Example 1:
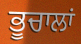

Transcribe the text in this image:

ਭੂਚਾਲਾਂ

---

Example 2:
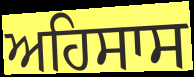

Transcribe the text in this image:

ਅਹਿਸਾਸ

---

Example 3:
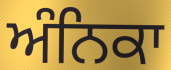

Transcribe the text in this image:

ਅੰਨਿਕਾ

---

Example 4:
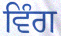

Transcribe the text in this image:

ਵਿੰਗ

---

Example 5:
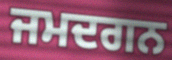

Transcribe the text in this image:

ਜਮਦਗਨ